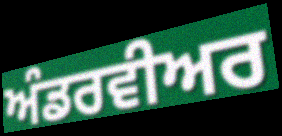
ਅੰਡਰਵੀਅਰ